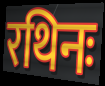
रथिनः